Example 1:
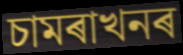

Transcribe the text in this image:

চামৰাখনৰ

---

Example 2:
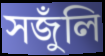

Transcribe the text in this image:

সজুঁলি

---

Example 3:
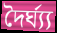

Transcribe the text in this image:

দৈৰ্ঘ্য্য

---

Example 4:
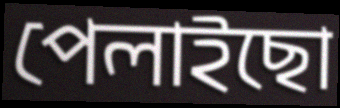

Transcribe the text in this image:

পেলাইছো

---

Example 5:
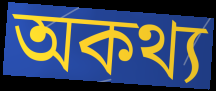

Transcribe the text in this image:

অকথ্য